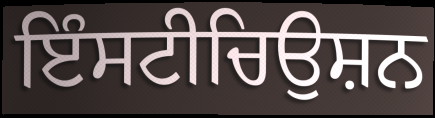
ਇੰਸਟੀਚਿਉਸ਼ਨ